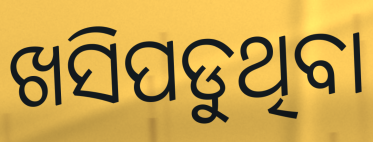
ଖସିପଡୁଥିବା